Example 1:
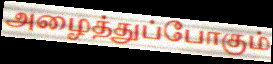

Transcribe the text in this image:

அழைத்துப்போகும்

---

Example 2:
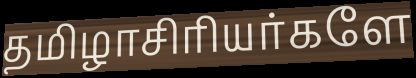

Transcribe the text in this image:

தமிழாசிரியர்களே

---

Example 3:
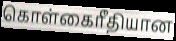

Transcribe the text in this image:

கொள்கைரீதியான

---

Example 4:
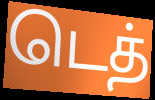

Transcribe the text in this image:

டெத்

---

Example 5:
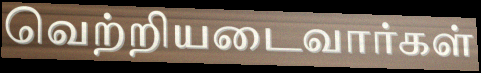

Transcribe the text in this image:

வெற்றியடைவார்கள்